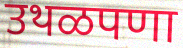
उथळपणा